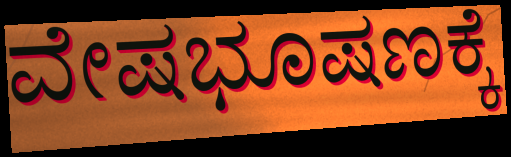
ವೇಷಭೂಷಣಕ್ಕೆ